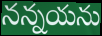
నన్నయను